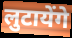
लुटायेंगे